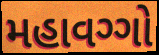
મહાવગ્ગો